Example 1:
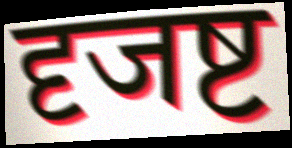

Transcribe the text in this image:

दृजष्ट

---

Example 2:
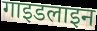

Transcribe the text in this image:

गाइडलाइन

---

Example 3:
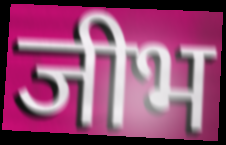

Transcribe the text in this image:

जीभ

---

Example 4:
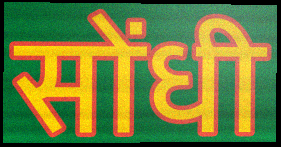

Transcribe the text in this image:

सोंधी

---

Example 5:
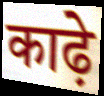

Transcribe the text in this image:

काढ़े